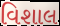
વિશાલ